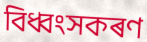
বিধ্বংসকৰণ